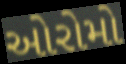
ઓરોમો